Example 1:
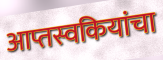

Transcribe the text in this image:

आप्तस्वकियांचा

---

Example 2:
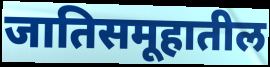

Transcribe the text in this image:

जातिसमूहातील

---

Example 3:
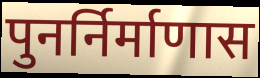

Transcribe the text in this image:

पुनर्निर्माणास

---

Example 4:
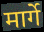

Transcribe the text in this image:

मार्गे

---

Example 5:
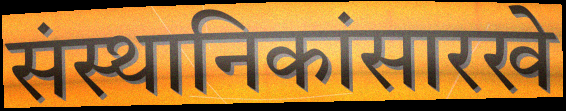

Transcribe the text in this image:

संस्थानिकांसारखे